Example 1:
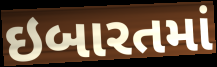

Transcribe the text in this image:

ઇબારતમાં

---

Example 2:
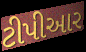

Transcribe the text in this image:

ટીપીઆર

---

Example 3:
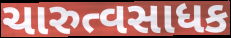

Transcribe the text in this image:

ચારુત્વસાધક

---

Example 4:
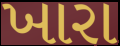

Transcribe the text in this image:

ખારા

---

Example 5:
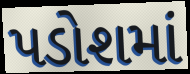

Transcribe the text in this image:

પડોશમાં